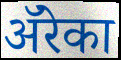
ॲरेका